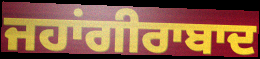
ਜਹਾਂਗੀਰਾਬਾਦ